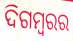
ଦିଗମ୍ୱରର